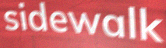
sidewalk